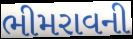
ભીમરાવની